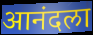
आनंदला